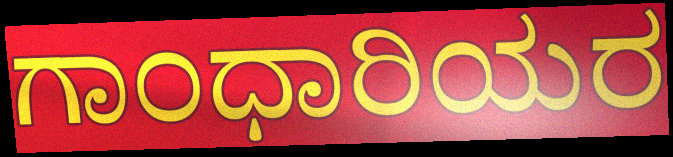
ಗಾಂಧಾರಿಯರ